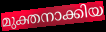
മുക്തനാക്കിയ